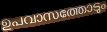
ഉപവാസത്തോടും